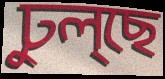
ঢুল্‌ছে